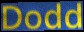
Dodd